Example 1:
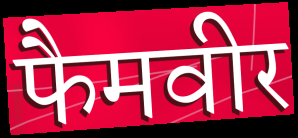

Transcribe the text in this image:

फैमवीर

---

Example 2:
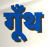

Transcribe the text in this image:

गूँथ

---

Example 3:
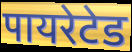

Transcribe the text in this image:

पायरेटेड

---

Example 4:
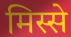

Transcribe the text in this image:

मिस्से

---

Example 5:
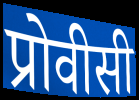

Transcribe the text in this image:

प्रोवीसी